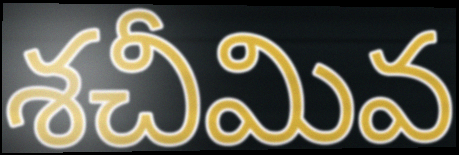
శచీమివ